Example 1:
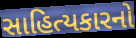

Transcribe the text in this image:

સાહિત્યકારનો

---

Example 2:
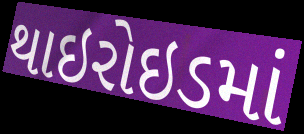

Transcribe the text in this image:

થાઇરોઇડમાં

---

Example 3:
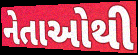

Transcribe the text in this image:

નેતાઓથી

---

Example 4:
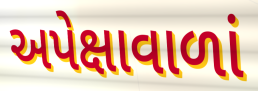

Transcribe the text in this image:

અપેક્ષાવાળાં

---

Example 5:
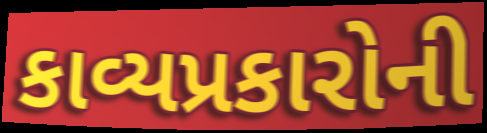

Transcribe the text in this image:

કાવ્યપ્રકારોની